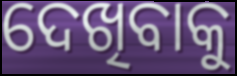
ଦେଖିବାକୁ